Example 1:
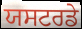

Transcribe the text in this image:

ਯਸਟਰਡੇ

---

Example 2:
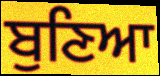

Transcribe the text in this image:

ਬੁਣਿਆ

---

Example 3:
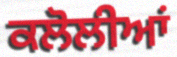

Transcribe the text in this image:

ਕਲੋਲੀਆਂ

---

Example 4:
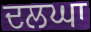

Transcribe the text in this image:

ਦਲਘਾ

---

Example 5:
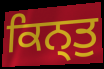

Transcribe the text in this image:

ਕਿਨ੍ਤੁ